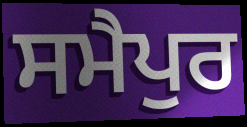
ਸਮੈਪੁਰ